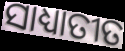
ସାଧ୍ୟାତୀତ